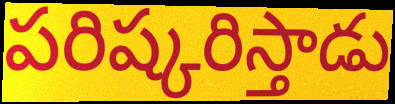
పరిష్కరిస్తాడు